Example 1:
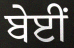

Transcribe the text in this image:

ਬੇਈਂ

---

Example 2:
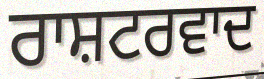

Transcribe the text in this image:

ਰਾਸ਼ਟਰਵਾਦ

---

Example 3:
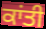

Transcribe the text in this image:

ਕਾਂਤੀ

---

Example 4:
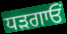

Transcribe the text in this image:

ਧੜਗਾਓਂ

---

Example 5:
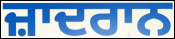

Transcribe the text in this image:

ਜ਼ਾਦਰਾਨ